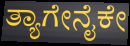
ತ್ಯಾಗೇನೈಕೇ